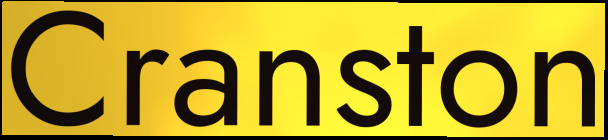
Cranston